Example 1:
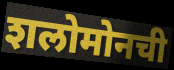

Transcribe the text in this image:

शलोमोनची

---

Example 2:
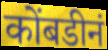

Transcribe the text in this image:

कोंबडीनं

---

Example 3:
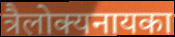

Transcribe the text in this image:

त्रैलोक्यनायका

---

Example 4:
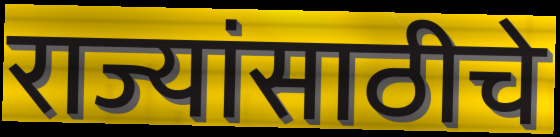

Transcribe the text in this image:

राज्यांसाठीचे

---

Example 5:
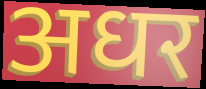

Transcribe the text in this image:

अधर